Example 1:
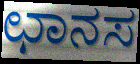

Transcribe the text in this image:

ಛಾನಸ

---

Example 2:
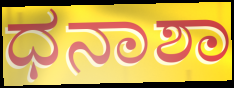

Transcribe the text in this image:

ಧನಾಶಾ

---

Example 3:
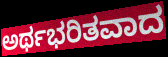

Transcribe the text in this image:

ಅರ್ಥಭರಿತವಾದ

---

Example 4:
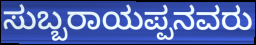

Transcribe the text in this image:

ಸುಬ್ಬರಾಯಪ್ಪನವರು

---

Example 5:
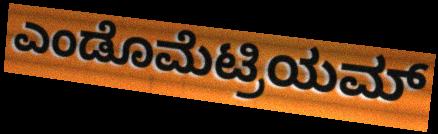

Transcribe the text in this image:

ಎಂಡೊಮೆಟ್ರಿಯಮ್